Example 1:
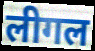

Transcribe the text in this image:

लीगल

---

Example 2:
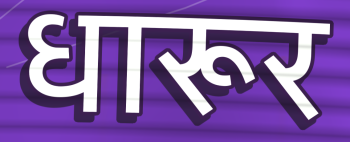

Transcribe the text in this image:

धारूर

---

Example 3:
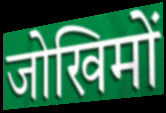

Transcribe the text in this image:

जोखिमों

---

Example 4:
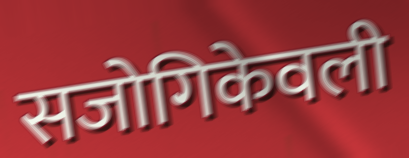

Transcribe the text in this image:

सजोगिकेवली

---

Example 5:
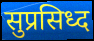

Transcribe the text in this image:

सुप्रसिध्द